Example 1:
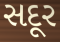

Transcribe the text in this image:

સદૂર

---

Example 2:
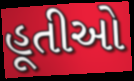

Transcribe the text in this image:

હૂતીઓ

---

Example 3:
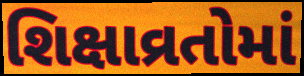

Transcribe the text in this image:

શિક્ષાવ્રતોમાં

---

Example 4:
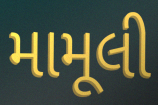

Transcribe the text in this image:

મામૂલી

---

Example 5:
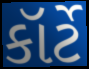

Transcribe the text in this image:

કૉર્ટે